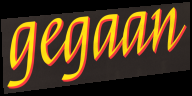
gegaan